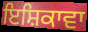
ਇਸ਼ਿਕਾਵਾ